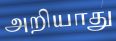
அறியாது